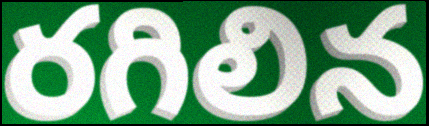
రగిలిన